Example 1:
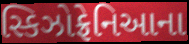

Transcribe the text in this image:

સ્કિઝોફ્રેનિઆના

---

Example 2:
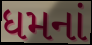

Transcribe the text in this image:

ધમનાં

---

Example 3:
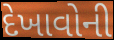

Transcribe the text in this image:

દેખાવોની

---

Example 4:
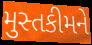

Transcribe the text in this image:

મુસ્તકીમને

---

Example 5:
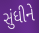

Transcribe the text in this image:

સુંધીને